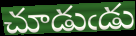
చూడుఁడు